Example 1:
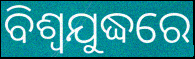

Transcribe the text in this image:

ବିଶ୍ଵଯୁଦ୍ଧରେ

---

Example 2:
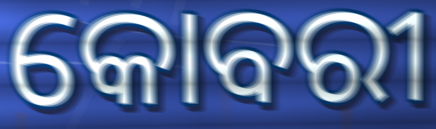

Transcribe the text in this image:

କୋବରୀ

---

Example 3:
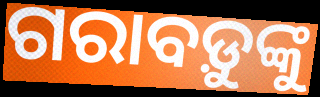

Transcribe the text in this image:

ଗରାବଡ଼ୁଙ୍କୁ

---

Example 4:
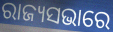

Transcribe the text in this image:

ରାଜ୍ୟସଭାରେ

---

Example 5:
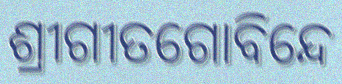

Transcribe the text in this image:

ଶ୍ରୀଗୀତଗୋବିନ୍ଦେ